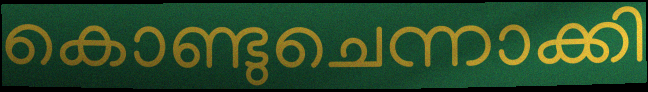
കൊണ്ടുചെന്നാക്കി